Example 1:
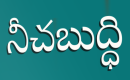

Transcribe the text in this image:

నీచబుద్ధి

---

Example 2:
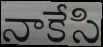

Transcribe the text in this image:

నాకేసి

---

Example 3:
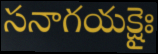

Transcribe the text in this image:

సనాగయక్షైః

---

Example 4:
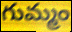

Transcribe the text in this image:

గుమ్మం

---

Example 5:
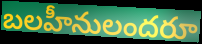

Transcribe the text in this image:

బలహీనులందరూ